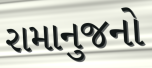
રામાનુજનો